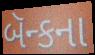
બૅન્કના